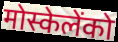
मोस्केलेंको